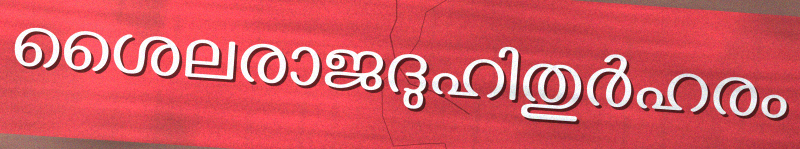
ശൈലരാജദുഹിതുർഹരം